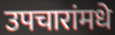
उपचारांमधे